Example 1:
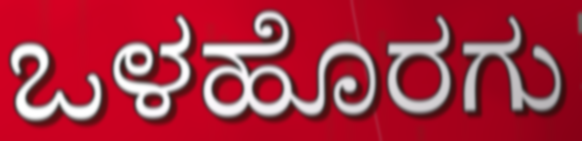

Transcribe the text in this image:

ಒಳಹೊರಗು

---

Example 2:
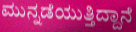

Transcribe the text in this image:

ಮುನ್ನಡೆಯುತ್ತಿದ್ದಾನೆ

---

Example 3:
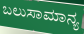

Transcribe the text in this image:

ಬಲುಸಾಮಾನ್ಯ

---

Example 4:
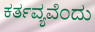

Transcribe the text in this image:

ಕರ್ತವ್ಯವೆಂದು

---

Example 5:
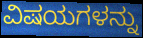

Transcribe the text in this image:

ವಿಷಯಗಳನ್ನು